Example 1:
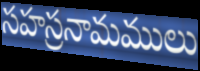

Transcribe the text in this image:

సహస్రనామములు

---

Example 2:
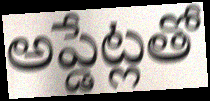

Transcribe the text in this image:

అప్డేట్లతో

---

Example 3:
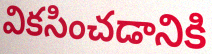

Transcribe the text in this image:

వికసించడానికి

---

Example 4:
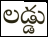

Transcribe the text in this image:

లడ్డు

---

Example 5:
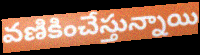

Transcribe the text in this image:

వణికించేస్తున్నాయి